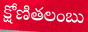
క్షోణితలంబు